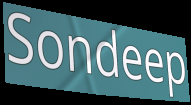
Sondeep